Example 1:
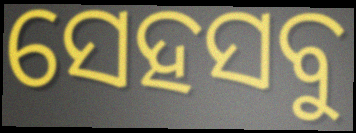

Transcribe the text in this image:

ସେହସବୁ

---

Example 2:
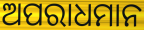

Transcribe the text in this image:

ଅପରାଧମାନ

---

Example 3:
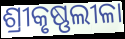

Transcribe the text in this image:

ଶ୍ରୀକୃଷ୍ଣଲୀଳା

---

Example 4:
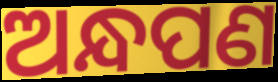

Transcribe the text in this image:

ଅନ୍ଧପଣ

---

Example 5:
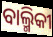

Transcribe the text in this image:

ବାଲ୍ମିକୀ